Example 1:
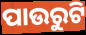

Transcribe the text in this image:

ପାଉରୁଟି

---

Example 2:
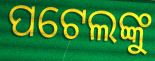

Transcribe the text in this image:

ପଟେଲଙ୍କୁ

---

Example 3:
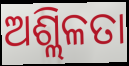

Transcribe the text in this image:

ଅଶ୍ଲିଳତା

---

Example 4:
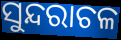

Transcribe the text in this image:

ସୁନ୍ଦରାଚଳ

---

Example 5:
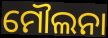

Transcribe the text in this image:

ମୌଲନା